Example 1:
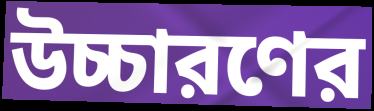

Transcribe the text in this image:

উচ্চারণের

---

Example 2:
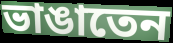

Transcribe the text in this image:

ভাঙাতেন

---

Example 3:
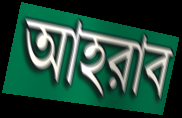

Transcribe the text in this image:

আহরাব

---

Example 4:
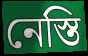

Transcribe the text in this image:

নেস্তি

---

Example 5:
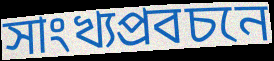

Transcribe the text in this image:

সাংখ্যপ্রবচনে